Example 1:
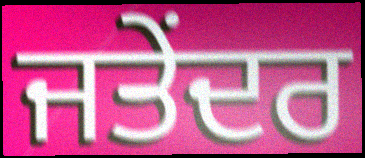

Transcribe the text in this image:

ਜਤੇਂਦਰ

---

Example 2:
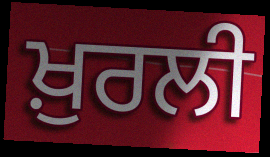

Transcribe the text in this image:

ਖ਼ੁਰਲੀ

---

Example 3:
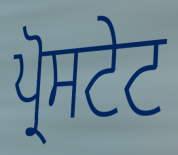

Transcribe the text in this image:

ਪ੍ਰੋਸਟੇਟ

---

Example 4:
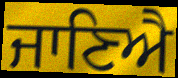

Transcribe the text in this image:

ਜਾਣਿਐ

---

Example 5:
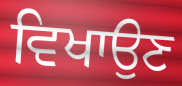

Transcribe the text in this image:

ਵਿਖਾਉਣ